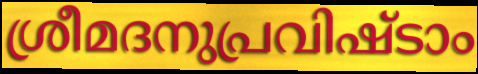
ശ്രീമദനുപ്രവിഷ്ടാം